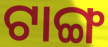
ଟାଙ୍ଗ